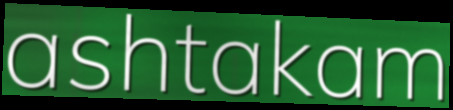
ashtakam